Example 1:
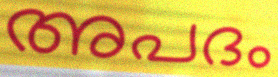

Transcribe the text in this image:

അപദം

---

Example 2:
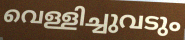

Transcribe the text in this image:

വെള്ളിച്ചുവടും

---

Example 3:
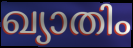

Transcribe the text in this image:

ഖ്യാതിം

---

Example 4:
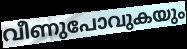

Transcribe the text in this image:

വീണുപോവുകയും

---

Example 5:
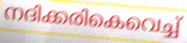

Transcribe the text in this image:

നദിക്കരികെവെച്ച്